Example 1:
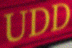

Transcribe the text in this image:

UDD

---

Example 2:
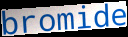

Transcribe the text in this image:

bromide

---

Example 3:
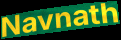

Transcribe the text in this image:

Navnath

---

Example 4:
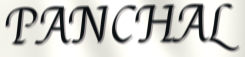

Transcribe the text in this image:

PANCHAL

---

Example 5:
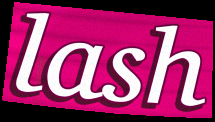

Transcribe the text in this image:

lash